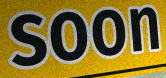
soon